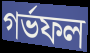
গর্ভফল